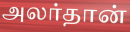
அலர்தான்